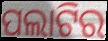
ପଲାଟିର